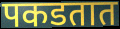
पकडतात